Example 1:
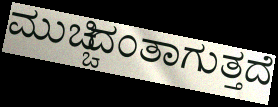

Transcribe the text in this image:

ಮುಚ್ಚಿದಂತಾಗುತ್ತದೆ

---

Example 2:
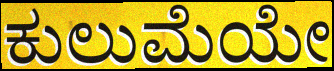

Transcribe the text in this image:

ಕುಲುಮೆಯೇ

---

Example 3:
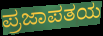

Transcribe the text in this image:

ಪ್ರಜಾಪತಯ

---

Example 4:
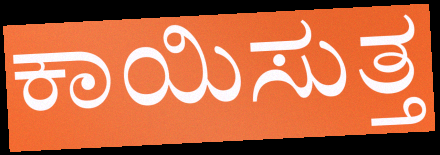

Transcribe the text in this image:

ಕಾಯಿಸುತ್ತ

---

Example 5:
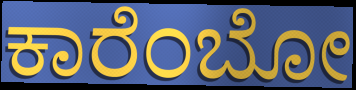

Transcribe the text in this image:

ಕಾರೆಂಬೋ